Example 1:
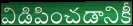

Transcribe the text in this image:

విడిపించడానికీ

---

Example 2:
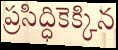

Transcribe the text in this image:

ప్రసిద్ధికెక్కిన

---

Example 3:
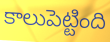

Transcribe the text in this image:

కాలుపెట్టింది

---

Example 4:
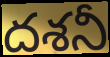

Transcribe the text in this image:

దశనీ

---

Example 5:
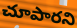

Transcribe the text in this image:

చూపారని